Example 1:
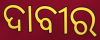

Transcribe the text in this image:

ଦାବୀର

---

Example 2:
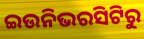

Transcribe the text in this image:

ଇଉନିଭରସିଟିରୁ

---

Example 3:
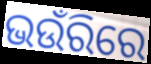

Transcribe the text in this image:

ଭଉଁରିରେ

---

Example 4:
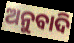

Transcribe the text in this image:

ଅନୁବାଦି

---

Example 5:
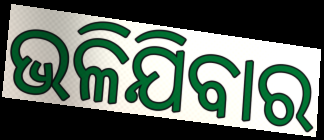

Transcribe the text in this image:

ଭଳିଯିବାର